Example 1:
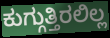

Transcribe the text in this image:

ಕುಗ್ಗುತ್ತಿರಲಿಲ್ಲ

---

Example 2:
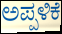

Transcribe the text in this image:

ಅಪ್ಪಳಿಕೆ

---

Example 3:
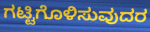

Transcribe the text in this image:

ಗಟ್ಟಿಗೊಳಿಸುವುದರ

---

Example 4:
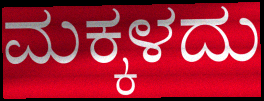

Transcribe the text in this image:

ಮಕ್ಕಳದು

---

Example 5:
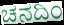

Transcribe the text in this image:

ಚನದಿಂ